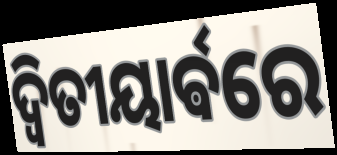
ଦ୍ଵିତୀୟାର୍ଵରେ